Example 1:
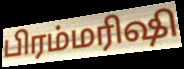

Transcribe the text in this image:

பிரம்மரிஷி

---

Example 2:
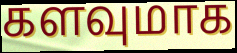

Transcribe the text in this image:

களவுமாக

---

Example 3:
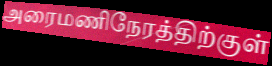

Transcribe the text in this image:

அரைமணிநேரத்திற்குள்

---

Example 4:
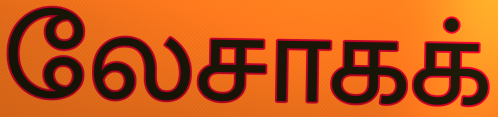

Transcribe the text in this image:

லேசாகக்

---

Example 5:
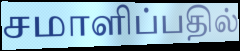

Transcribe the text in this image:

சமாளிப்பதில்